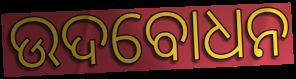
ଉଦବୋଧନ